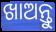
ଖାଅନ୍ତୁ